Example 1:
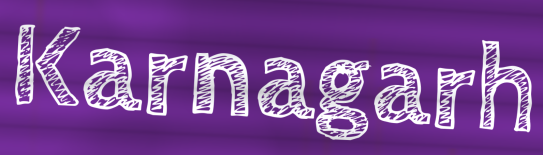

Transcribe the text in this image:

Karnagarh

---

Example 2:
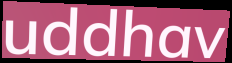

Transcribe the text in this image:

uddhav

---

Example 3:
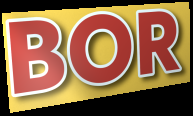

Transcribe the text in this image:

BOR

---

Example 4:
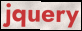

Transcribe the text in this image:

jquery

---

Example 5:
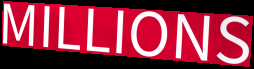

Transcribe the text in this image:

MILLIONS